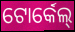
ଟୋର୍କେଲ୍